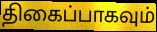
திகைப்பாகவும்